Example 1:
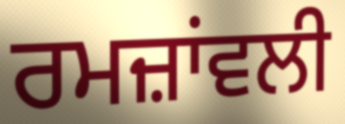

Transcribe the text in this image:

ਰਮਜ਼ਾਂਵਲੀ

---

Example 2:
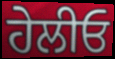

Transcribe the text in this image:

ਹੇਲੀਓ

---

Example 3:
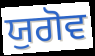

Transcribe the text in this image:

ਯੁਗੋਵ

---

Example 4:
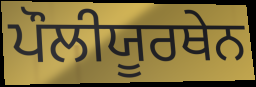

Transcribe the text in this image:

ਪੌਲੀਯੂਰਥੇਨ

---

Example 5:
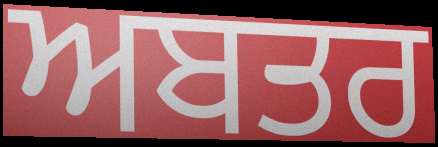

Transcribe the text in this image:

ਅਬਤਰ